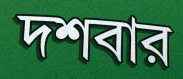
দশবার